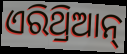
ଏରିଥ୍ରିଆନ୍